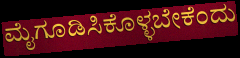
ಮೈಗೂಡಿಸಿಕೊಳ್ಳಬೇಕೆಂದು